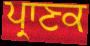
ਪ੍ਰਾਣਕ